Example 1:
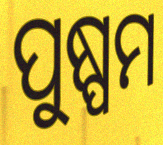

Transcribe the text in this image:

ପୁଷ୍ପମ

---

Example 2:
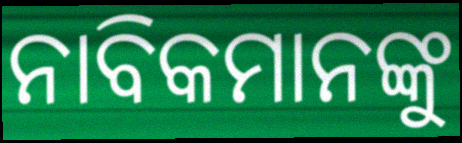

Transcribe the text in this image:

ନାବିକମାନଙ୍କୁ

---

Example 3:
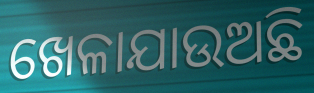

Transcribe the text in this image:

ଖେଳାଯାଉଅଛି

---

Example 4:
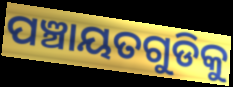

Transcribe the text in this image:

ପଞ୍ଚାୟତଗୁଡିକୁ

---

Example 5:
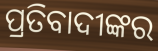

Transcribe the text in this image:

ପ୍ରତିବାଦୀଙ୍କର